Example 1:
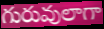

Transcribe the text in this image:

గురువులాగా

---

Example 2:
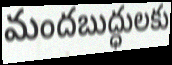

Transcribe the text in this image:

మందబుద్ధులకు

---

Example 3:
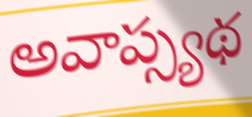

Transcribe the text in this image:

అవాప్స్యథ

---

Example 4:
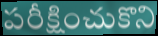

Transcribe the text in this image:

పరీక్షించుకొని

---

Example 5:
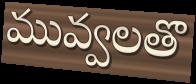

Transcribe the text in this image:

మువ్వలతొ